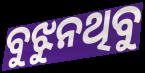
ବୁଝୁନଥିବୁ